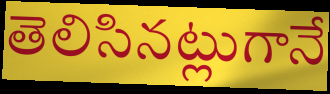
తెలిసినట్లుగానే